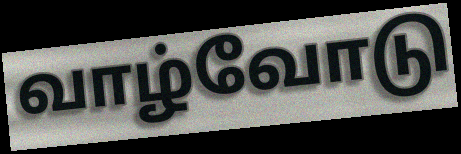
வாழ்வோடு